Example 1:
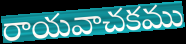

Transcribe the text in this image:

రాయవాచకము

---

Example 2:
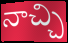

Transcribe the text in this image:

నాచ్చి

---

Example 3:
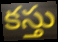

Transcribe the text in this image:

కస్తు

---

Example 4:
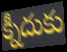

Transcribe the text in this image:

క్నీదుకు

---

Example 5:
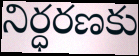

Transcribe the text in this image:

నిర్ధరణకు